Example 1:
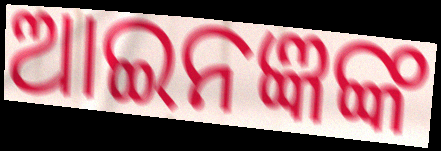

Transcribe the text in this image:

ଆଇନଜ୍ଞଙ୍କ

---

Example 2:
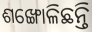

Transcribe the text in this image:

ଶଙ୍ଖୋଳିଛନ୍ତି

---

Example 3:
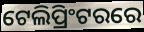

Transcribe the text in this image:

ଟେଲିପ୍ରିଂଟରରେ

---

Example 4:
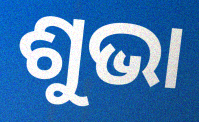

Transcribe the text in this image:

ଶୁଭା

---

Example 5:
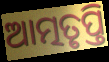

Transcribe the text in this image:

ଆତ୍ମତୃପ୍ତି